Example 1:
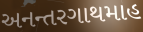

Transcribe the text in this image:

અનન્તરગાથમાહ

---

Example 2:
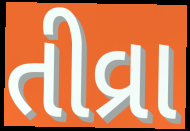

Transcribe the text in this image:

તીવ્રા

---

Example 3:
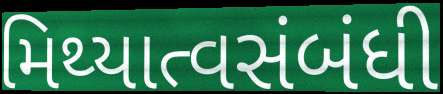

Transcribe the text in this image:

મિથ્યાત્વસંબંધી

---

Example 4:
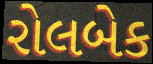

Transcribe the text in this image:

રોલબેક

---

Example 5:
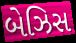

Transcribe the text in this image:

બેઝિસ